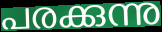
പരക്കുന്നു